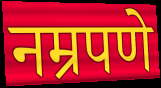
नम्रपणे